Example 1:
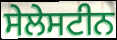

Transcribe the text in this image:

ਸੇਲੇਸਟੀਨ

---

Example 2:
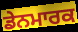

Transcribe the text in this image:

ਡੇਨਮਾਰਕ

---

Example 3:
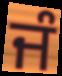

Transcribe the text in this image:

ਜੰ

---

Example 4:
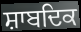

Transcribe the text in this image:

ਸ਼ਾਬਦਿਕ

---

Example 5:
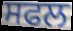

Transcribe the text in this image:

ਸਫਲ